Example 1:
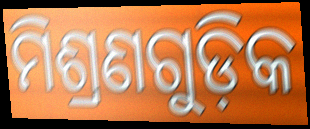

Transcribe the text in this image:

ମିଶ୍ରଣଗୁଡ଼ିକ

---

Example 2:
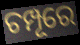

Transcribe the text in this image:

ଚମ୍ପୂରେ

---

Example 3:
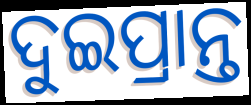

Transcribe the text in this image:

ଦୁଇପ୍ରାନ୍ତ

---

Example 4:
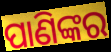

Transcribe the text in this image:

ପାଣିଙ୍କର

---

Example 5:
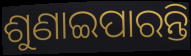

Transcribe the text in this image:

ଶୁଣାଇପାରନ୍ତି